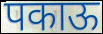
पकाऊ